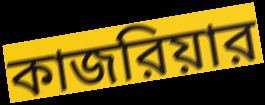
কাজরিয়ার